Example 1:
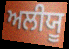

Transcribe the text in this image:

ਅਲੀਯੂ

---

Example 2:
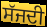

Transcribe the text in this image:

ਸੱਜਦੀ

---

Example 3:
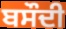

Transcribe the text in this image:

ਬਸੌਦੀ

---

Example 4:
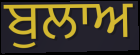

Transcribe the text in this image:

ਬੁਲਾਅ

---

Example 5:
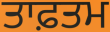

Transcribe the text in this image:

ਤਾਫ਼ਤਮ